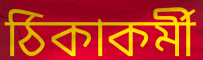
ঠিকাকর্মী